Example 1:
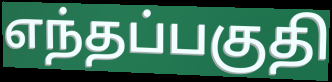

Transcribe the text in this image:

எந்தப்பகுதி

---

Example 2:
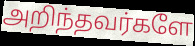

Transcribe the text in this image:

அறிந்தவர்களே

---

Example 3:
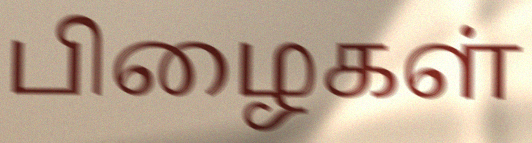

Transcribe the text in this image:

பிழைகள்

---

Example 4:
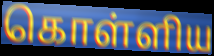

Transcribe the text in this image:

கொள்ளிய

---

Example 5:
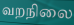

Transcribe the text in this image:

வறநிலை